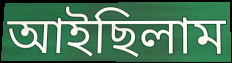
আইছিলাম